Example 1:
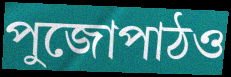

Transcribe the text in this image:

পুজোপাঠও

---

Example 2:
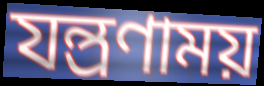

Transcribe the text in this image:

যন্ত্রণাময়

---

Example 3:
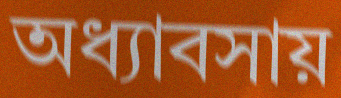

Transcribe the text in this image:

অধ্যাবসায়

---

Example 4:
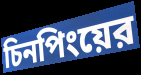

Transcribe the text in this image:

চিনপিংয়ের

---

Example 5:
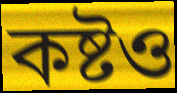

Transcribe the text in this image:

কষ্টও